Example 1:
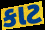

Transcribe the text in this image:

કાટ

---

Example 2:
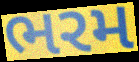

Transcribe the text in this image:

ભરમ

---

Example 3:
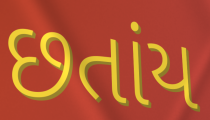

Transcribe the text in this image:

છતાંય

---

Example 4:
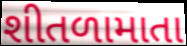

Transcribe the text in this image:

શીતળામાતા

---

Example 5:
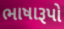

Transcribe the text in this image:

ભાષારૂપો